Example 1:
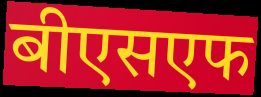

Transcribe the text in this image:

बीएसएफ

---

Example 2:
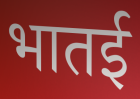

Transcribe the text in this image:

भातई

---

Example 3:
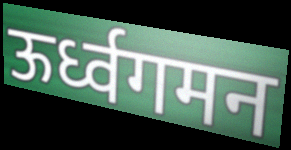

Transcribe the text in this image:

ऊर्ध्वगमन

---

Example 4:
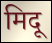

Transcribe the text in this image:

मिदू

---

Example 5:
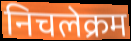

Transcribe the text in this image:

निचलेक्रम